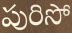
పురిసో